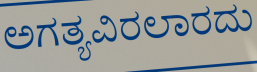
ಅಗತ್ಯವಿರಲಾರದು